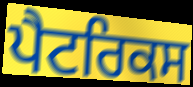
ਪੈਟਰਿਕਸ